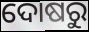
ଦୋଷରୁ